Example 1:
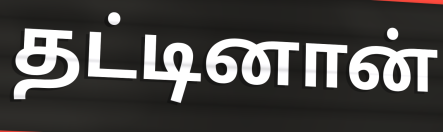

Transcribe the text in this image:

தட்டினான்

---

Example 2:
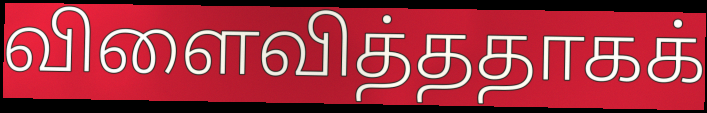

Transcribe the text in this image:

விளைவித்ததாகக்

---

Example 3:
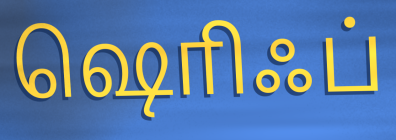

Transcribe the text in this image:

ஷெரிஃப்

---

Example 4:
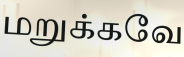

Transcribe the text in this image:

மறுக்கவே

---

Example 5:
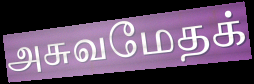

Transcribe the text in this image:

அசுவமேதக்